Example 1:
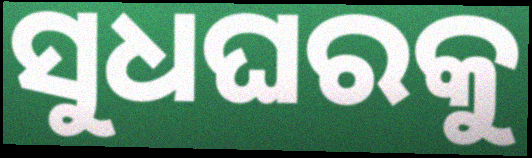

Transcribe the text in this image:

ସୁଧଘରକୁ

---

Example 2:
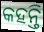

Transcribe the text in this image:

କହନ୍ତି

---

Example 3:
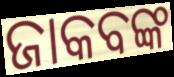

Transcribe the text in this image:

ଜାକବଙ୍କ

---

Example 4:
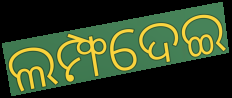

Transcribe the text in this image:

ଲମ୍ଫଦେଇ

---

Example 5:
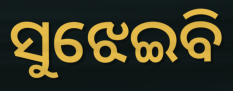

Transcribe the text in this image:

ସୁଝେଇବି